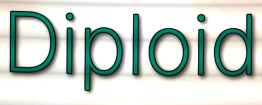
Diploid